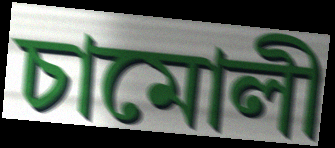
চামোলী